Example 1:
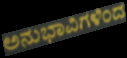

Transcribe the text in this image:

ಅನುಭಾವಿಗಳಿಂದ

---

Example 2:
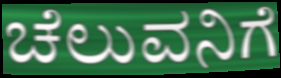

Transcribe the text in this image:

ಚೆಲುವನಿಗೆ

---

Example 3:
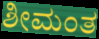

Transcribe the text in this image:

ಶೀಮಂತ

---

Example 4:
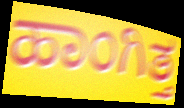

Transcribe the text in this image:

ಹಾಂಗಿತ್ತ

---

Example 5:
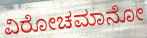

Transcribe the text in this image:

ವಿರೋಚಮಾನೋ